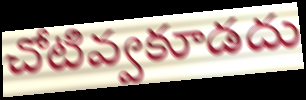
చోటివ్వకూడదు